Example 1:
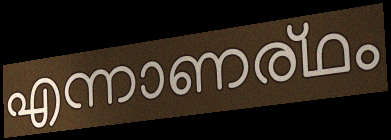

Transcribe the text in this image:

എന്നാണര്ഥം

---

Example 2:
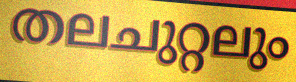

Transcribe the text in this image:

തലചുറ്റലും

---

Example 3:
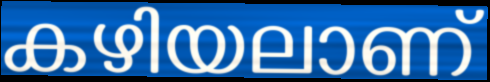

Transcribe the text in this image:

കഴിയലാണ്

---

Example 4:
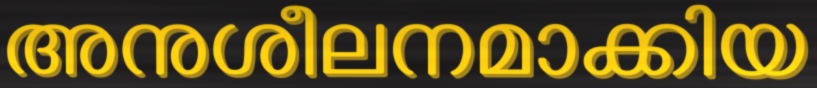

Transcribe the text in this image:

അനുശീലനമാക്കിയ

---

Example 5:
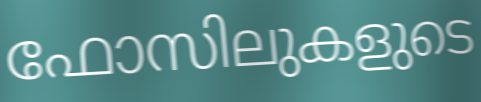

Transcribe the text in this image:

ഫോസിലുകളുടെ